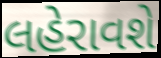
લહેરાવશે